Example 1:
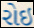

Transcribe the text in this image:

રોઇ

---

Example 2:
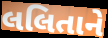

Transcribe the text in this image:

લલિતાને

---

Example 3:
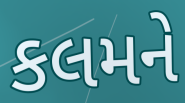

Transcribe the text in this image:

કલમને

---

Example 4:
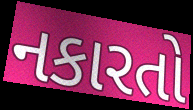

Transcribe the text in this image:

નકારતો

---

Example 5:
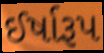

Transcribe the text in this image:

ઈર્ષારૂપ